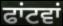
ਫਾਂਟਵਾਂ